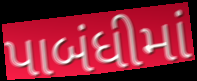
પાબંધીમાં